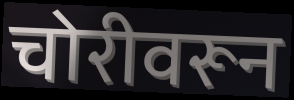
चोरीवरून